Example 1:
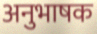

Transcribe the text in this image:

अनुभाषक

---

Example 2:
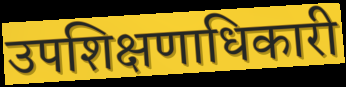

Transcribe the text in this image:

उपशिक्षणाधिकारी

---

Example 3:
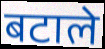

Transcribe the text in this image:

बटाले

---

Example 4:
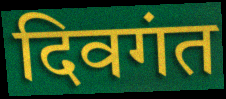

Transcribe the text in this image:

दिवगंत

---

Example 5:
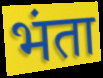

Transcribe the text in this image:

भंता